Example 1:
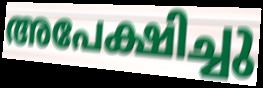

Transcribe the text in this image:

അപേക്ഷിച്ചു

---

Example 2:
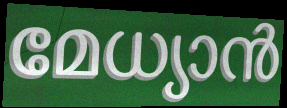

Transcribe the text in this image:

മേധ്യാൻ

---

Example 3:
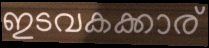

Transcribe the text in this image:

ഇടവകക്കാര്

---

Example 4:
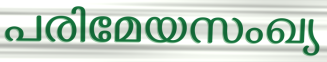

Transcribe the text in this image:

പരിമേയസംഖ്യ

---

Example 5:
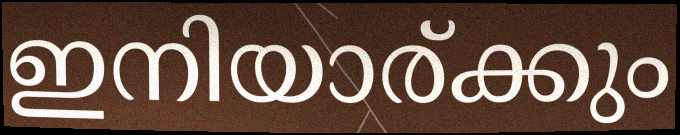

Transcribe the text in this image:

ഇനിയാര്ക്കും